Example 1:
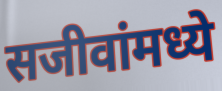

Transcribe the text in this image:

सजीवांमध्ये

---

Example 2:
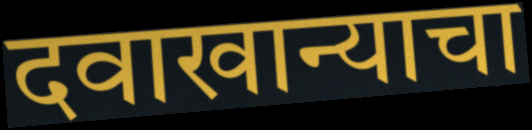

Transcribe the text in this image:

दवाखान्याचा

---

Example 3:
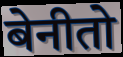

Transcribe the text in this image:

बेनीतो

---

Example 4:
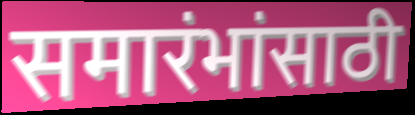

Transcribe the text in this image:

समारंभांसाठी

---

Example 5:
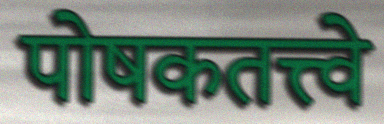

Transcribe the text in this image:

पोषकतत्त्वे